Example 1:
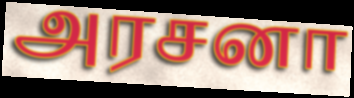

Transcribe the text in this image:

அரசனா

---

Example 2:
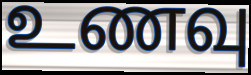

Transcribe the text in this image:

உணவு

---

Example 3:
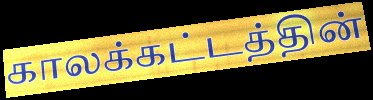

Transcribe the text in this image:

காலக்கட்டத்தின்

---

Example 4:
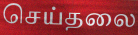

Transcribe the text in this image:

செய்தலை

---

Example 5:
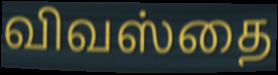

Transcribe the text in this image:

விவஸ்தை